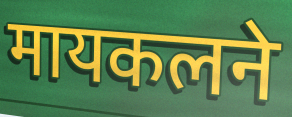
मायकलने